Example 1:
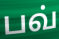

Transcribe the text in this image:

பவ்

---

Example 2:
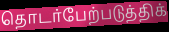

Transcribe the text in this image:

தொடர்பேற்படுத்திக்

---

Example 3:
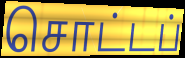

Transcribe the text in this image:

சொட்டப்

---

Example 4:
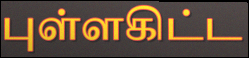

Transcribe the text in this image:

புள்ளகிட்ட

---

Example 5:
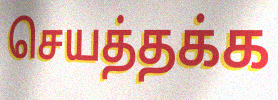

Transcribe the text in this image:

செயத்தக்க